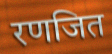
रणजित